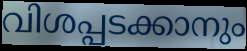
വിശപ്പടക്കാനും